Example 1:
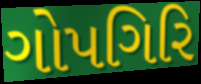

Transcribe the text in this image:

ગોપગિરિ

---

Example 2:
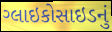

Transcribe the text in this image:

ગ્લાઇકોસાઇડનું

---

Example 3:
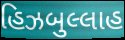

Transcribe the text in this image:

હિઝબુલ્લાહ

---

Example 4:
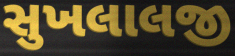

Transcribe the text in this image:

સુખલાલજી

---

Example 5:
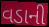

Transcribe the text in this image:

વડાની